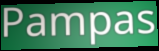
Pampas